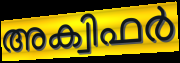
അക്വിഫർ